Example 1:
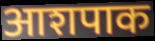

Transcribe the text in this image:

आशपाक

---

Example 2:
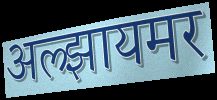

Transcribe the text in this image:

अल्झायमर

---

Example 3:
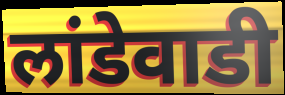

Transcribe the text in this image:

लांडेवाडी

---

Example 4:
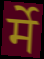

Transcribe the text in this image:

र्मे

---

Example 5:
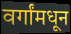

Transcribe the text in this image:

वर्गांमधून